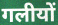
गलीयों